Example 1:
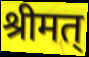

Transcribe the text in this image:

श्रीमत्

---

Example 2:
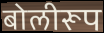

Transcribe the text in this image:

बोलीरूप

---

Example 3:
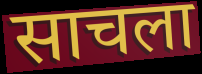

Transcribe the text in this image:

साचला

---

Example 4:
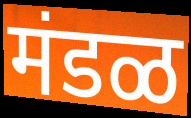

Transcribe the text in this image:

मंडळ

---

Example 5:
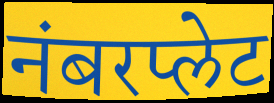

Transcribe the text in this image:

नंबरप्लेट